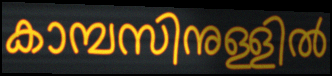
കാമ്പസിനുള്ളിൽ